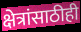
क्षेत्रांसाठीही